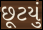
છૂટયું